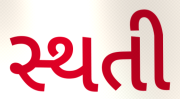
સ્થતી